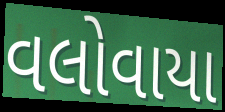
વલોવાયા